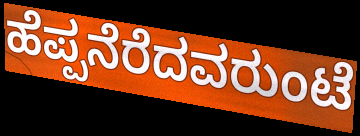
ಹೆಪ್ಪನೆರೆದವರುಂಟೆ